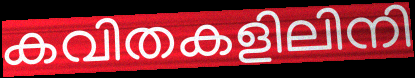
കവിതകളിലിനി